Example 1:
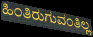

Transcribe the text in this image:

ಹಿಂತಿರುಗುವಂತಿಲ್ಲ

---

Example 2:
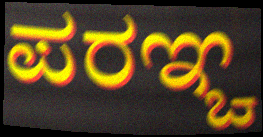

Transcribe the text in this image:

ಪರಞ್ಚ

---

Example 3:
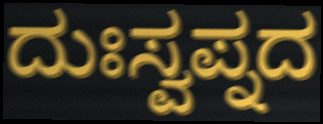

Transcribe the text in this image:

ದುಃಸ್ವಪ್ನದ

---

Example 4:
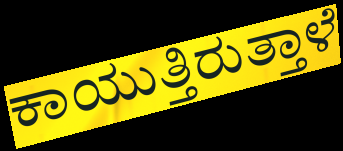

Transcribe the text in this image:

ಕಾಯುತ್ತಿರುತ್ತಾಳೆ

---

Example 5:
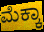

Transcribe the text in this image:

ಮೆಕ್ಕಾ